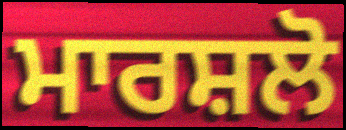
ਮਾਰਸ਼ਲੋ